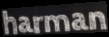
harman